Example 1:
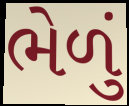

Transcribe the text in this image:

ભેળું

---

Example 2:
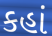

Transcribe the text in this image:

કહાં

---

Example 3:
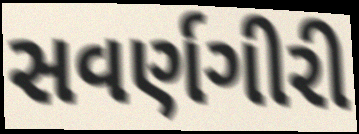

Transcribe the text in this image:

સવર્ણગીરી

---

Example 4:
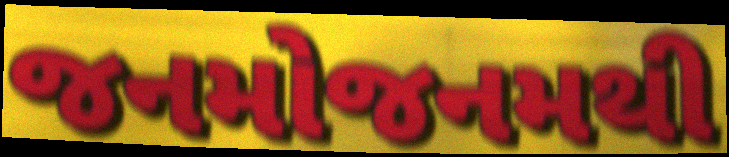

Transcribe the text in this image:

જનમોજનમથી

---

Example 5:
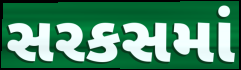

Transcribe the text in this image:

સરકસમાં